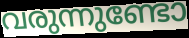
വരുന്നുണ്ടോ